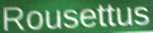
Rousettus